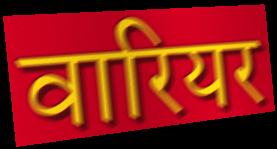
वारियर